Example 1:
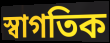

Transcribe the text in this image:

স্বাগতিক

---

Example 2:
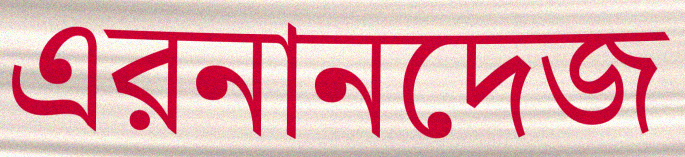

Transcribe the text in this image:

এরনানদেজ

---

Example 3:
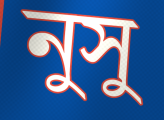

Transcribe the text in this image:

নুসু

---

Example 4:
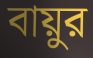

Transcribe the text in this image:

বায়ুর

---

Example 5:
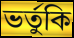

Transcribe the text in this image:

ভর্তুকি